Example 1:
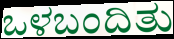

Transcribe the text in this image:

ಒಳಬಂದಿತು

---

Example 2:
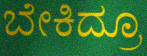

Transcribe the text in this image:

ಬೇಕಿದ್ರೂ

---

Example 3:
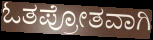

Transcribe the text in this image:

ಓತಪ್ರೋತವಾಗಿ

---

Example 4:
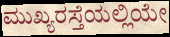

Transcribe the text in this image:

ಮುಖ್ಯರಸ್ತೆಯಲ್ಲಿಯೇ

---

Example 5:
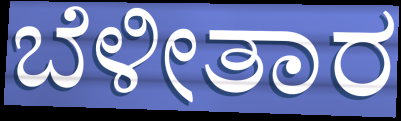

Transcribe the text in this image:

ಬೆಳೀತಾರ